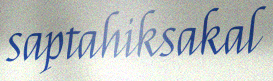
saptahiksakal